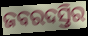
ଜବରଦସ୍ତିର